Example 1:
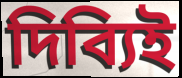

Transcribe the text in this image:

দিব্যিই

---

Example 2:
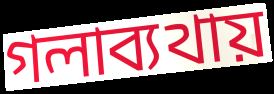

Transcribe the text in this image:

গলাব্যথায়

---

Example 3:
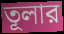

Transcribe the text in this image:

তূলার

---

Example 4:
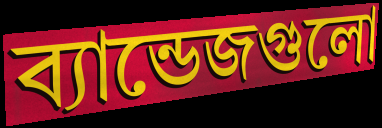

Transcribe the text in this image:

ব্যান্ডেজগুলো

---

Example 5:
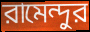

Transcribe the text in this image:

রামেন্দুর